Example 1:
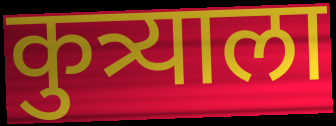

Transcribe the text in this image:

कुत्र्याला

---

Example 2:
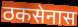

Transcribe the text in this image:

ठकसेनास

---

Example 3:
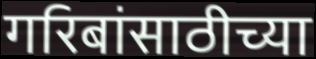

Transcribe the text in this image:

गरिबांसाठीच्या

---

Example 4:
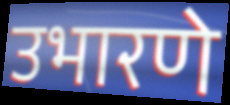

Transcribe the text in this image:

उभारणे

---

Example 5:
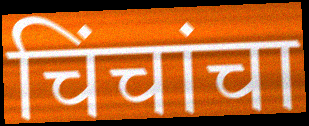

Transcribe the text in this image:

चिंचांचा